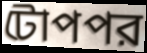
টোপপর